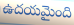
ఉదయమైంది